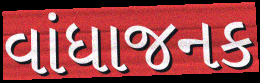
વાંધાજનક